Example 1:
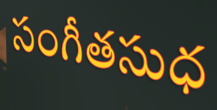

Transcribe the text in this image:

సంగీతసుధ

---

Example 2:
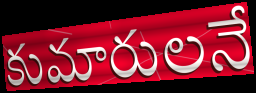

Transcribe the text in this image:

కుమారులనే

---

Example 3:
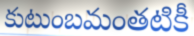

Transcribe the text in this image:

కుటుంబమంతటికీ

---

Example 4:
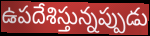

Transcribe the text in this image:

ఉపదేశిస్తున్నప్పుడు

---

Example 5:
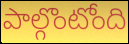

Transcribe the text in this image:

పాల్గొంటోంది